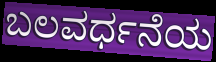
ಬಲವರ್ಧನೆಯ